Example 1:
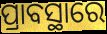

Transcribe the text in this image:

ପ୍ରାବସ୍ଥାରେ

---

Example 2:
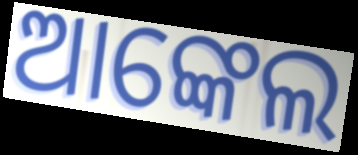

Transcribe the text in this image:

ଆଙ୍କେଲ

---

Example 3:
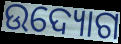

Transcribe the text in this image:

ଉଦ୍ୟୋଗ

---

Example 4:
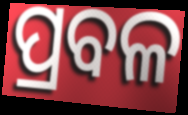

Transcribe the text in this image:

ପ୍ରବଳ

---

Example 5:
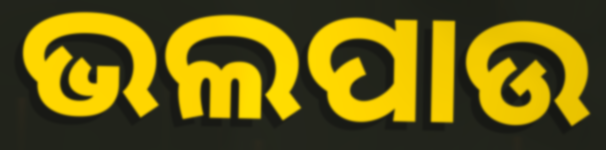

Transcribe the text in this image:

ଭଲପାଉ